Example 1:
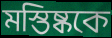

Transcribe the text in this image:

মস্তিষ্ককে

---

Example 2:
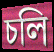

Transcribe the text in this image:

চলি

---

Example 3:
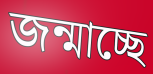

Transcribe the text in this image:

জন্মাচ্ছে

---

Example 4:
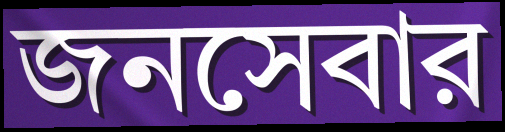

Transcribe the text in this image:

জনসেবার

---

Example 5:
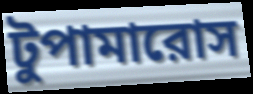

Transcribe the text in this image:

টুপামারোস